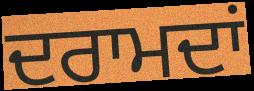
ਦਰਾਮਦਾਂ